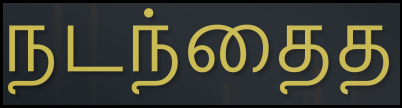
நடந்தைத